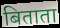
बिताता